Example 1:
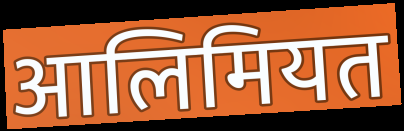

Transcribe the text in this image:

आलिमियत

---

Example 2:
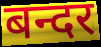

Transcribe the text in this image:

बन्दर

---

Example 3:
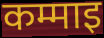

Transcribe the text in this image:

कम्माइ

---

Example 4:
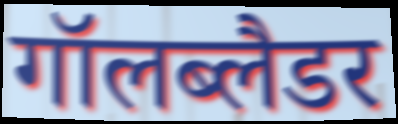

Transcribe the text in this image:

गॉलब्लैडर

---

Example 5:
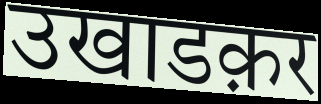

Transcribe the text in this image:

उखाडक़र